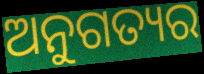
ଅନୁଗତ୍ୟର